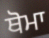
ਥੋਮਾ